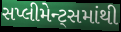
સપ્લીમેન્ટ્સમાંથી